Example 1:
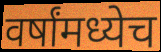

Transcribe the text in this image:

वर्षांमध्येच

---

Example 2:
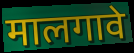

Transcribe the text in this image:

मालगावे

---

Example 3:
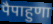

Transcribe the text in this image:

पैपाहुणा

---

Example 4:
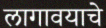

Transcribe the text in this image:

लागावयाचे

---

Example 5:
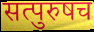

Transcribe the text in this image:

सत्पुरुषच